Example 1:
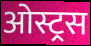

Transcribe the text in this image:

ओस्ट्रस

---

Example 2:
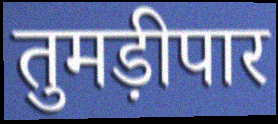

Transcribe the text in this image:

तुमड़ीपार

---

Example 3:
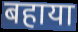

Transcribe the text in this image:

बहाया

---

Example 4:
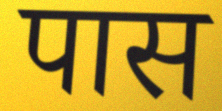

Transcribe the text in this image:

पास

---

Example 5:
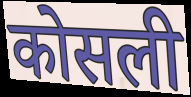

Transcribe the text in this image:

कोसली